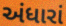
અંધારાં